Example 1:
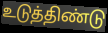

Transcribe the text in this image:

உடுத்திண்டு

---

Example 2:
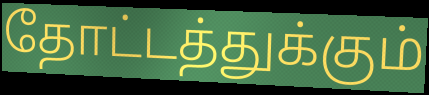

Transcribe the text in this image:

தோட்டத்துக்கும்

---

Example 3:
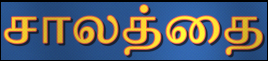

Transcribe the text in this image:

சாலத்தை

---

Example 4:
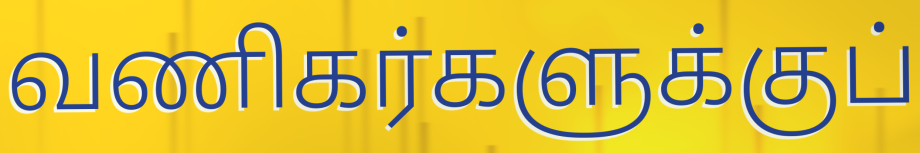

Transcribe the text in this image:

வணிகர்களுக்குப்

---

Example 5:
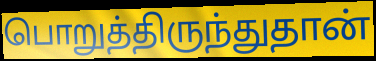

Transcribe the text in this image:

பொறுத்திருந்துதான்